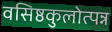
वसिष्ठकुलोत्पन्न